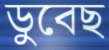
ডুবেছ